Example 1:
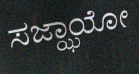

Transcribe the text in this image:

ಸಜ್ಝಾಯೋ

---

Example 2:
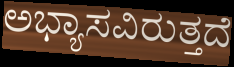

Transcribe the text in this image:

ಅಭ್ಯಾಸವಿರುತ್ತದೆ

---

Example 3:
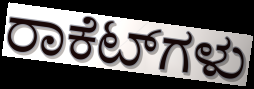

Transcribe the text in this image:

ರಾಕೆಟ್‌ಗಳು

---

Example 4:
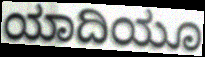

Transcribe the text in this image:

ಯಾದಿಯೂ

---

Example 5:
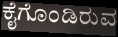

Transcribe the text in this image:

ಕೈಗೊಂಡಿರುವ